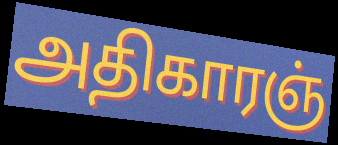
அதிகாரஞ்